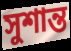
সুশান্ত